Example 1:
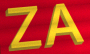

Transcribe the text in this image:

ZA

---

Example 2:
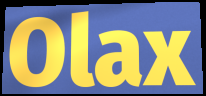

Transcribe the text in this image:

Olax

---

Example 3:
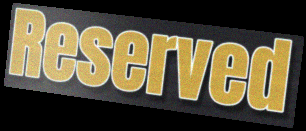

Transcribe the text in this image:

Reserved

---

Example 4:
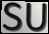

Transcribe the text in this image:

SU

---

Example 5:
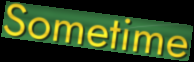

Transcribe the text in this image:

Sometime